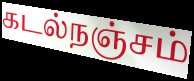
கடல்நஞ்சம்